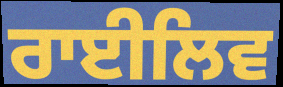
ਰਾਈਲਿਵ